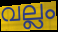
വല്ലം